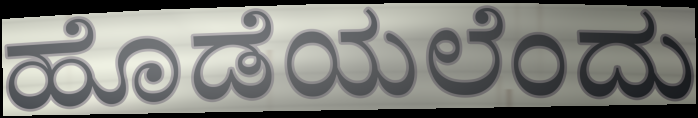
ಹೊಡೆಯಲೆಂದು